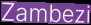
Zambezi